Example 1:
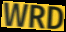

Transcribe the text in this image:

WRD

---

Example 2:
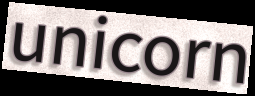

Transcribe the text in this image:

unicorn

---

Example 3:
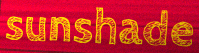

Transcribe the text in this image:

sunshade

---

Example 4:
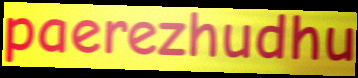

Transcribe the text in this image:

paerezhudhu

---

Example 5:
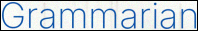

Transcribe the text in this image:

Grammarian